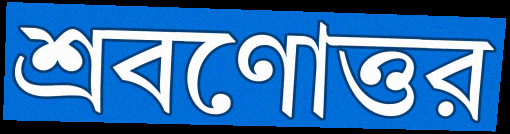
শ্রবণোত্তর